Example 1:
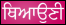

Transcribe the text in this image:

ਥਿਆਉਣੀ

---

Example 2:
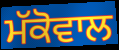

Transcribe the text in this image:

ਮੱਕੋਵਾਲ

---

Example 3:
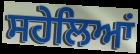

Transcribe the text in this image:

ਸਹੇਲਿਆਂ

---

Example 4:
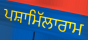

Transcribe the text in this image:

ਪਸ਼ਾਮਿੱਲਾਰਾਮ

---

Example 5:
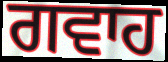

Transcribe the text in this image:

ਗਵਾਹ